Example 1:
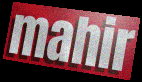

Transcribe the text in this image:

mahir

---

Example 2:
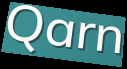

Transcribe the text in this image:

Qarn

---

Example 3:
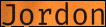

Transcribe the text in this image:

Jordon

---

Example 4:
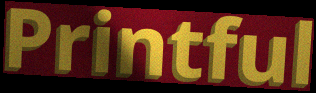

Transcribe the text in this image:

Printful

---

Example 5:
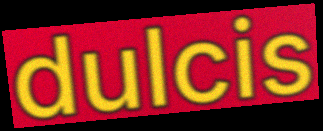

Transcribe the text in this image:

dulcis